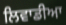
ਲਿਵਾਡੀਆ